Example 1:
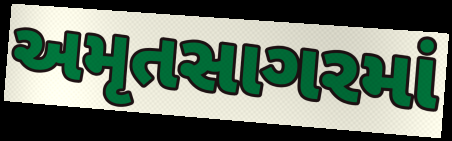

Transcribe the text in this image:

અમૃતસાગરમાં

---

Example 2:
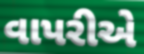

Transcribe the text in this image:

વાપરીએ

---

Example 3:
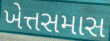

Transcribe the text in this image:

ખેત્તસમાસ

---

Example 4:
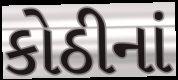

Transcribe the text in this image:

કોઠીનાં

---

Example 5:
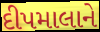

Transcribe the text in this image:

દીપમાલાને